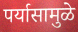
पर्यासामुळे